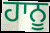
ਹਾਨੂ